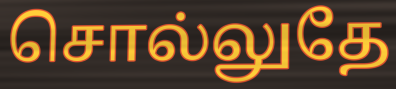
சொல்லுதே